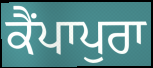
ਕੈਂਪਾਪੁਰਾ